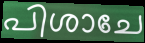
പിശാചേ